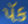
પૅક